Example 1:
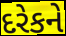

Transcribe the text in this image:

દરેકને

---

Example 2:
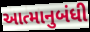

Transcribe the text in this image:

આત્માનુબંધી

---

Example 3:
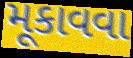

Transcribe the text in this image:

મૂકાવવા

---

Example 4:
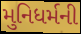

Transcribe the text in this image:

મુનિધર્મની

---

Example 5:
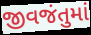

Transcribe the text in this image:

જીવજંતુમાં